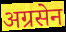
अग्रसेन